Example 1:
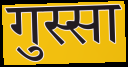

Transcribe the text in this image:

गुस्सा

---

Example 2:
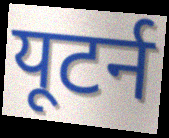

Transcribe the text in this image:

यूटर्न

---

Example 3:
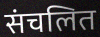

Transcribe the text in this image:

संचलित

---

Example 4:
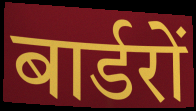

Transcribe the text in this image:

बार्डरों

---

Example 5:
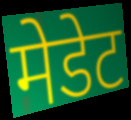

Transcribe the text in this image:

मेडेट